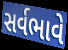
સર્વભાવે